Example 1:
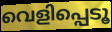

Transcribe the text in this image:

വെളിപ്പെടൂ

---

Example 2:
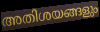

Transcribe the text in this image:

അതിശയങ്ങളും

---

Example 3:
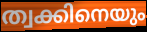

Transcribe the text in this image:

ത്വക്കിനെയും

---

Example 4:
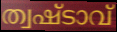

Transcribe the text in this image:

ത്വഷ്ടാവ്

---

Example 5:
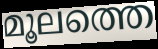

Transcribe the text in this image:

മൂലത്തെ